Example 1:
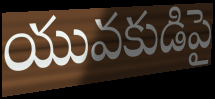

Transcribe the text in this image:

యువకుడిపై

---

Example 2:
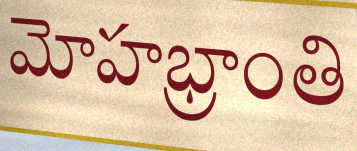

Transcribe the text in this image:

మోహభ్రాంతి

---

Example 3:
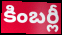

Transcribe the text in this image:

కింబర్లీ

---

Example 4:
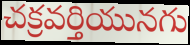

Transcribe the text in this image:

చక్రవర్తియునగు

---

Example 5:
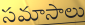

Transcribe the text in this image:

సమాసాలు